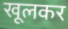
खूलकर